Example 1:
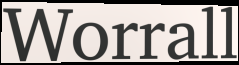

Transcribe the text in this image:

Worrall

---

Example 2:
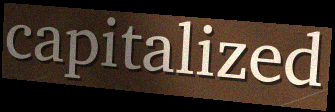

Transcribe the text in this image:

capitalized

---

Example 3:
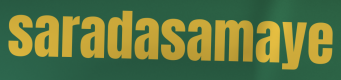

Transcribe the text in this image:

saradasamaye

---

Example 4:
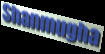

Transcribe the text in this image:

Shanmugha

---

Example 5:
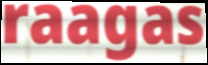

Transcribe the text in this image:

raagas